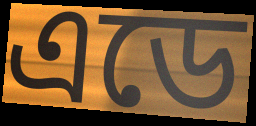
এডে